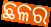
ଛଳର